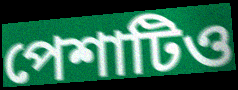
পেশাটিও